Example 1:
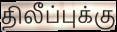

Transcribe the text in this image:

திலீப்புக்கு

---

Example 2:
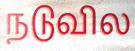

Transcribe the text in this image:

நடுவில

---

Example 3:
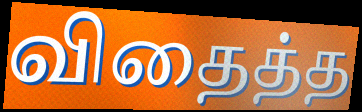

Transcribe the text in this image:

விதைத்த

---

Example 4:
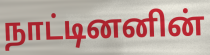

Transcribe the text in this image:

நாட்டினனின்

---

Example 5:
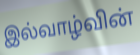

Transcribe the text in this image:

இல்வாழ்வின்